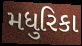
મધુરિકા